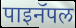
पाइनॅपल